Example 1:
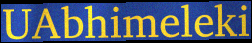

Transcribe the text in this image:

UAbhimeleki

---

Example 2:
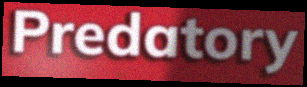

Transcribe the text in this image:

Predatory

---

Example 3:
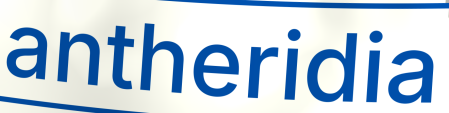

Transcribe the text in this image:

antheridia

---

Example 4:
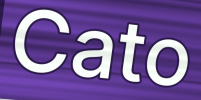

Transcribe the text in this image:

Cato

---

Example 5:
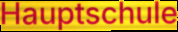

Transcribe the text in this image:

Hauptschule